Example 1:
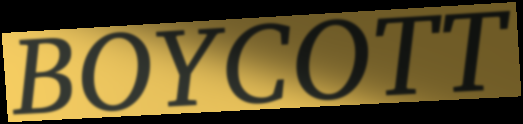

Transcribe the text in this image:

BOYCOTT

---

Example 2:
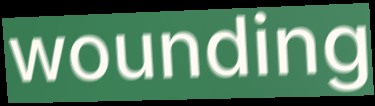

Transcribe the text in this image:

wounding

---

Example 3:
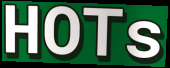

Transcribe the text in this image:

HOTs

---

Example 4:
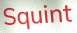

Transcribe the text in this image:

Squint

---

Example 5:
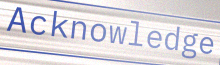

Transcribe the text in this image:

Acknowledge